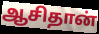
ஆசிதான்